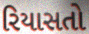
રિયાસતો